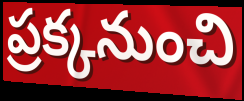
ప్రక్కనుంచి